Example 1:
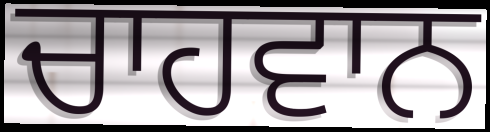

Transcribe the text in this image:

ਚਾਹਵਾਨ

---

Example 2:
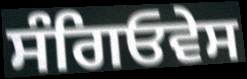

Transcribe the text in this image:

ਸੰਗਿਓਵੇਸ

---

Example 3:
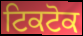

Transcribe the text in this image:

ਟਿਕਟੋਕ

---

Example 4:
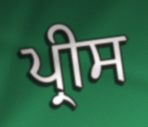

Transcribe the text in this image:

ਪ੍ਰੀਸ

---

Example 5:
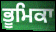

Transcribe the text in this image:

ਭੂਮਿਕਾ